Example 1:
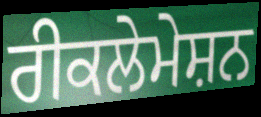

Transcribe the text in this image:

ਰੀਕਲੇਮੇਸ਼ਨ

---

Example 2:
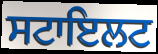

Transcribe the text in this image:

ਸਟਾਇਲਟ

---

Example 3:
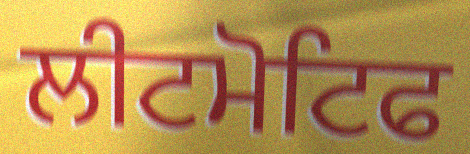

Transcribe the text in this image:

ਲੀਟਮੋਟਿਫ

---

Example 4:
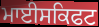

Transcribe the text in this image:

ਮਾਈਸਕਿਫਟ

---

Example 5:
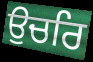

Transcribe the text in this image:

ਉਚਰਿ